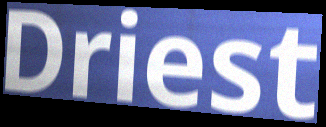
Driest